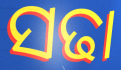
ସଢା